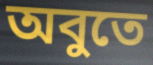
অবুতে